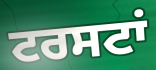
ਟਰਸਟਾਂ